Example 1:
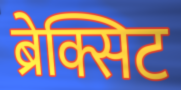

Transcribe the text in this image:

ब्रेक्सिट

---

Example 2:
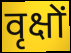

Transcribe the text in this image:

वृक्षों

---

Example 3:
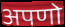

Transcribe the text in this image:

अपणो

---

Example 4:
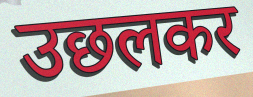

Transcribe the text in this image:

उछलकर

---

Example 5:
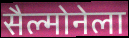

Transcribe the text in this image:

सैल्मोनेला